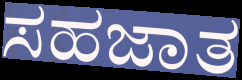
ಸಹಜಾತ